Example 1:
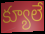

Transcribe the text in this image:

క్యూలే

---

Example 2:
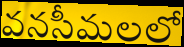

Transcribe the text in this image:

వనసీమలలో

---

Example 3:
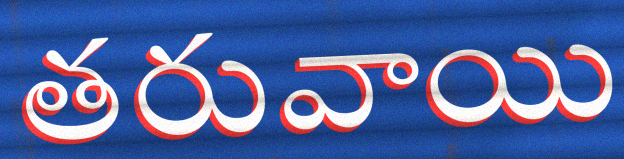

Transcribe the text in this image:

తరువాయి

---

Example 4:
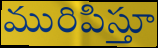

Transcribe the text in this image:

మురిపిస్తూ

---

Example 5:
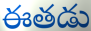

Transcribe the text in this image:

ఈతడు